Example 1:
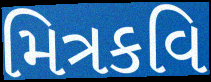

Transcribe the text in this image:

મિત્રકવિ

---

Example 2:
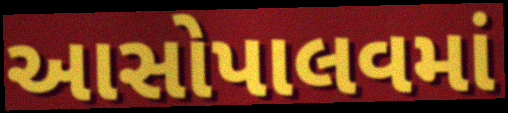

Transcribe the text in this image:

આસોપાલવમાં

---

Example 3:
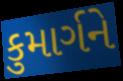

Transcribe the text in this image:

કુમાર્ગને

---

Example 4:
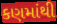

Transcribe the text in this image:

કણમાંથી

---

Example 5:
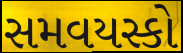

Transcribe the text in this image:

સમવયસ્કો